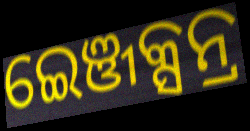
ଇେଞ୍ଜକ୍ସନ୍ର